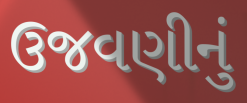
ઉજવણીનું